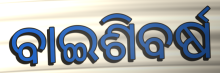
ବାଇଶିବର୍ଷ